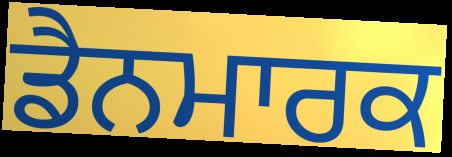
ਡੈਨਮਾਰਕ